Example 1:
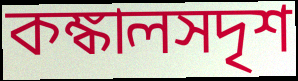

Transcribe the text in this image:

কঙ্কালসদৃশ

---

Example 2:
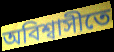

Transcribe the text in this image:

অবিশ্বাসীতে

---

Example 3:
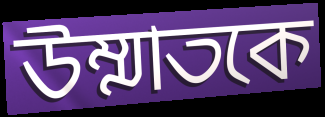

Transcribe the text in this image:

উম্মাতকে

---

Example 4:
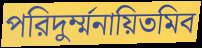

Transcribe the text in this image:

পরিদুর্ম্মনায়িতমিব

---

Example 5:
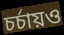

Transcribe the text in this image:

চর্চায়ও